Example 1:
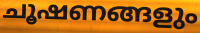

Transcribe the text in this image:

ചൂഷണങ്ങളും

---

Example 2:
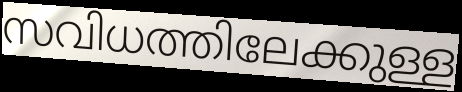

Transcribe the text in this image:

സവിധത്തിലേക്കുള്ള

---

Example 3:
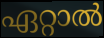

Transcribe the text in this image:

ഏറ്റാൽ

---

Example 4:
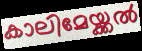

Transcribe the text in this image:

കാലിമേയ്ക്കൽ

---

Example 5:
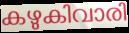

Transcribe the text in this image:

കഴുകിവാരി